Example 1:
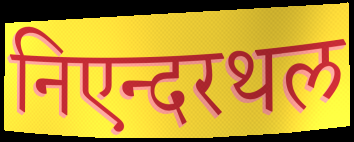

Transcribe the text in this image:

निएन्दरथल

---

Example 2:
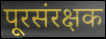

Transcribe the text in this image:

पूरसंरक्षक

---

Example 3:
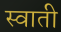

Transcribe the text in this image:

स्वाती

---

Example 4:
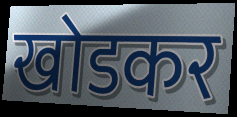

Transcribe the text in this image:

खोडकर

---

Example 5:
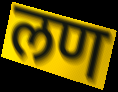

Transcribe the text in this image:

लण